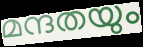
മന്ദതയും